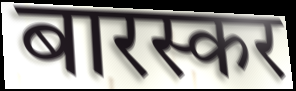
बारस्कर